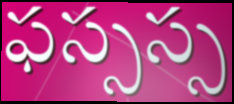
ఫస్సస్స